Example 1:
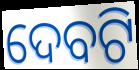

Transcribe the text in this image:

ଦେବଟି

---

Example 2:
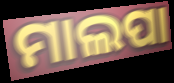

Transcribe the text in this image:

ମାଲପା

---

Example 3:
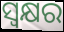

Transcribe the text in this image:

ସ୍ୱକ୍ଷର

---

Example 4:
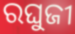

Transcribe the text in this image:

ରଘୁଜୀ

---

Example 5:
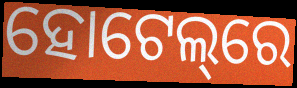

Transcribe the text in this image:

ହୋଟେଲ୍‌ରେ